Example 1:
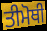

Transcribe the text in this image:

ਤੀਮੋਥੀ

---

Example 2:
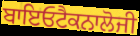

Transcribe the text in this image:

ਬਾਇਓਟੈਕਨਾਲੋਜੀ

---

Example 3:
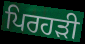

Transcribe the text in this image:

ਪਿਰਹੜੀ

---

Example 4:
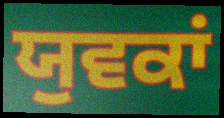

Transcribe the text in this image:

ਯੁਵਕਾਂ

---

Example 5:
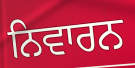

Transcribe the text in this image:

ਨਿਵਾਰਨ